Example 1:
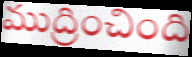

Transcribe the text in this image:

ముద్రించింది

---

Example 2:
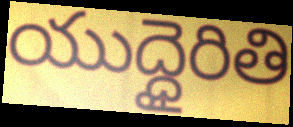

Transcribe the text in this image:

యుద్ధైరితి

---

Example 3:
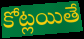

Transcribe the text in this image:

కోట్లయితే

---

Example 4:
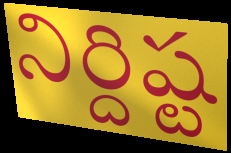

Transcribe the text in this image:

నిర్దిష్ట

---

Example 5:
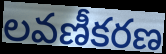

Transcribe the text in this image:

లవణీకరణ